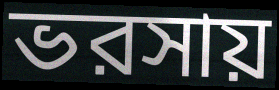
ভরসায়